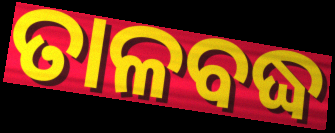
ତାଳବଦ୍ଧ